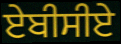
ਏਬੀਸੀਏ